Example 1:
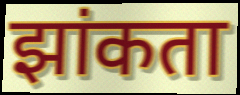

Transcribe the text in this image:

झांकता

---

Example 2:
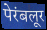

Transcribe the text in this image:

पेरंबलूर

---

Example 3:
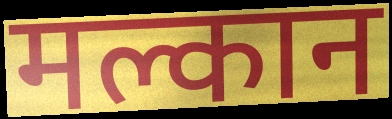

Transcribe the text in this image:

मल्कान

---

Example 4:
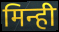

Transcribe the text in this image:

मिन्ही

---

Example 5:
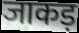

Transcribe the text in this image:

जाकड़